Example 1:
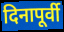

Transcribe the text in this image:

दिनापूर्वी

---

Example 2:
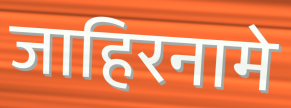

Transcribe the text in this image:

जाहिरनामे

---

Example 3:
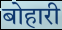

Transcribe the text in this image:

बोहारी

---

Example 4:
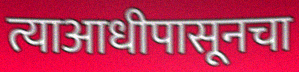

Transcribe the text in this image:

त्याआधीपासूनचा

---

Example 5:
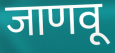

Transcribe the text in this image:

जाणवू